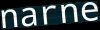
narne